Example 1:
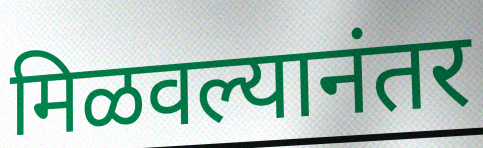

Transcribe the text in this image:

मिळवल्यानंतर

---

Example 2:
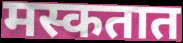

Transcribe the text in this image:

मस्कतात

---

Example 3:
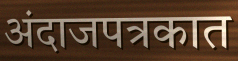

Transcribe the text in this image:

अंदाजपत्रकात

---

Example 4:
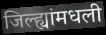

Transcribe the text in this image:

जिल्ह्यांमधली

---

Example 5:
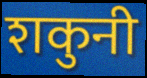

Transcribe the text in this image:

शकुनी